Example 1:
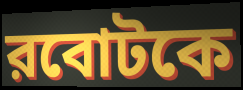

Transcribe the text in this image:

রবোটকে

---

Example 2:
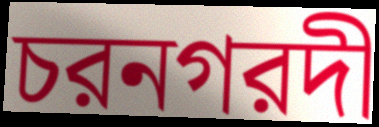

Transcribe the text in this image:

চরনগরদী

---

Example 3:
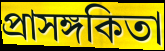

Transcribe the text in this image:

প্রাসঙ্গকিতা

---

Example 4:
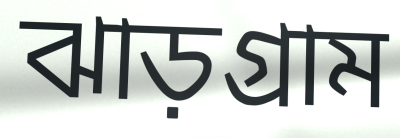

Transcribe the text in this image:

ঝাড়গ্রাম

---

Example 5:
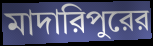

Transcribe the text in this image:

মাদারিপুরের